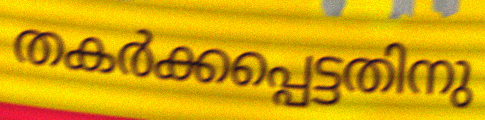
തകർക്കപ്പെട്ടതിനു